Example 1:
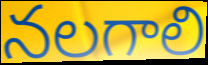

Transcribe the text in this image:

నలగాలి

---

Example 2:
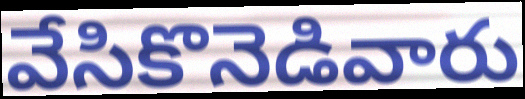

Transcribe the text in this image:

వేసికొనెడివారు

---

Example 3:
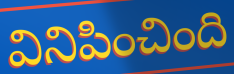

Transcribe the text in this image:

వినిపించింది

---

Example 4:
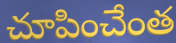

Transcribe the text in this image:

చూపించేంత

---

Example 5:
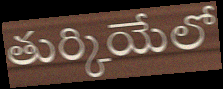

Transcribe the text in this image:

తుర్కియేలో